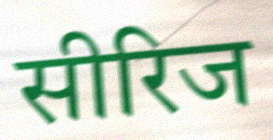
सीरिज